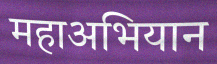
महाअभियान